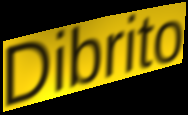
Dibrito